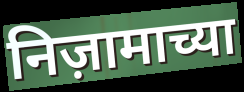
निज़ामाच्या